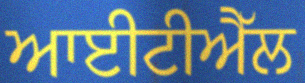
ਆਈਟੀਐੱਲ